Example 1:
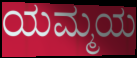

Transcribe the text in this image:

ಯಮ್ಮಯ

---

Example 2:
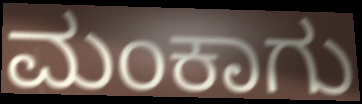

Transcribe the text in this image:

ಮಂಕಾಗು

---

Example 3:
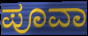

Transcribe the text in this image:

ಪೂವಾ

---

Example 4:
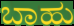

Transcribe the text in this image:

ಬಾಹು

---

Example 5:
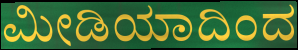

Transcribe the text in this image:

ಮೀಡಿಯಾದಿಂದ